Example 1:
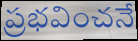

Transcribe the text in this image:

ప్రభవించనే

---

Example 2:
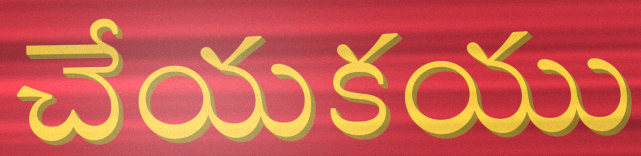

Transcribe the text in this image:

చేయకయు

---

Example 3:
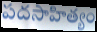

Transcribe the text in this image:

పదసాహిత్యం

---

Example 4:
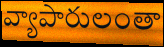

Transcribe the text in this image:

వ్యాపారులంతా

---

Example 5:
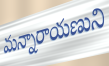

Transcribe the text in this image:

మన్నారాయణుని